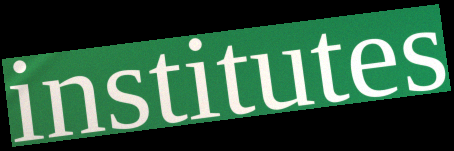
institutes